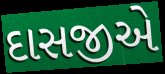
દાસજીએ